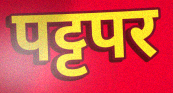
पट्टपर